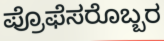
ಪ್ರೊಫೆಸರೊಬ್ಬರ